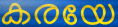
കരയേ